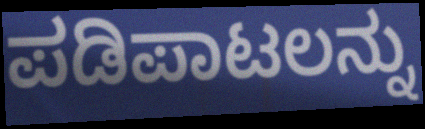
ಪಡಿಪಾಟಲನ್ನು